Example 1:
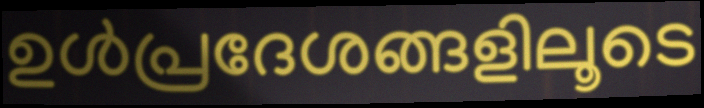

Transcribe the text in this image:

ഉൾപ്രദേശങ്ങളിലൂടെ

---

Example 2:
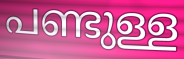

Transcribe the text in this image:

പണ്ടുള്ള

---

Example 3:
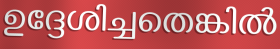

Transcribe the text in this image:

ഉദ്ദേശിച്ചതെങ്കിൽ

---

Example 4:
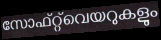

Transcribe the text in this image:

സോഫ്റ്റ്‌വെയറുകളും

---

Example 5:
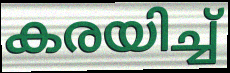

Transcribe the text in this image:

കരയിച്ച്